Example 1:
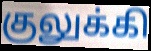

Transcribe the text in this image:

குலுக்கி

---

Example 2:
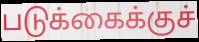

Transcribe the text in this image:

படுக்கைக்குச்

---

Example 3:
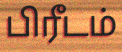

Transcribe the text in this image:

பிரீடம்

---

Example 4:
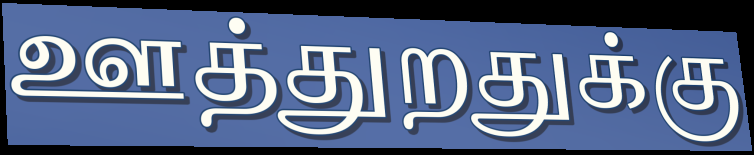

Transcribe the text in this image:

ஊத்துறதுக்கு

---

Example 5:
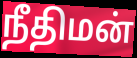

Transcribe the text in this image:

நீதிமன்